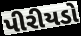
પીરીયડો